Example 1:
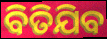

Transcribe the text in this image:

ବିତିଯିବ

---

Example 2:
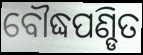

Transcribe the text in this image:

ବୌଦ୍ଧପଣ୍ଡିତ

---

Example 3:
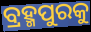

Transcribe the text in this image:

ବ୍ରହ୍ମପୁରକୁ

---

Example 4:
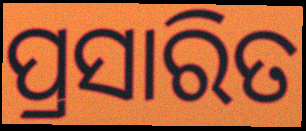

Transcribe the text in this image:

ପ୍ରସାରିତ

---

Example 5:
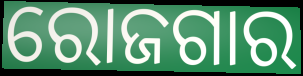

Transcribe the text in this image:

ରୋଜଗାର